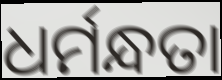
ଧର୍ମନ୍ଧତା